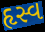
હૃસ્વ